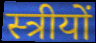
स्त्रीयों